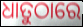
ଧାତୁଠାରେ